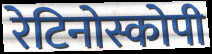
रेटिनोस्कोपी